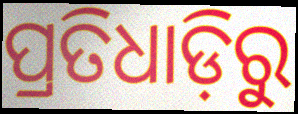
ପ୍ରତିଧାଡ଼ିରୁ